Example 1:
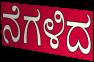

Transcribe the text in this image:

ನೆಗಳಿದ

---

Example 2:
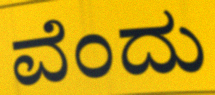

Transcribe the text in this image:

ವೆಂದು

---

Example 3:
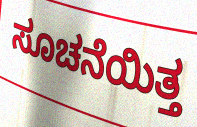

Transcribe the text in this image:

ಸೂಚನೆಯಿತ್ತ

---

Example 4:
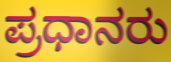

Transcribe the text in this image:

ಪ್ರಧಾನರು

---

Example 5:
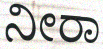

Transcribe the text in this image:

ನೀರಾ